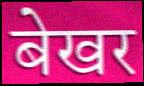
बेखर